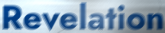
Revelation